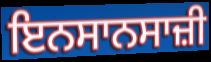
ਇਨਸਾਨਸਾਜ਼ੀ